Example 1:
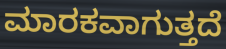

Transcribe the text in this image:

ಮಾರಕವಾಗುತ್ತದೆ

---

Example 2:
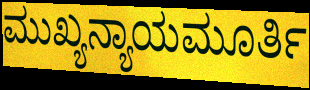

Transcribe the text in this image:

ಮುಖ್ಯನ್ಯಾಯಮೂರ್ತಿ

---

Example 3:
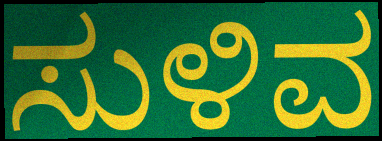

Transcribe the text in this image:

ಸುಳಿವ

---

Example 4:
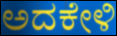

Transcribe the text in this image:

ಅದಕೇಳಿ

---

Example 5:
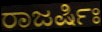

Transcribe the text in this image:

ರಾಜರ್ಷಿಃ